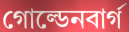
গোল্ডেনবার্গ